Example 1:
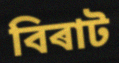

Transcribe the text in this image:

বিৰাট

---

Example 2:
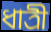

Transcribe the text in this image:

ধাত্ৰী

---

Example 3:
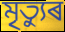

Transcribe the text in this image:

মৃত্যুৰ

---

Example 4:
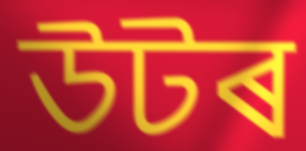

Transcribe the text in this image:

উটৰ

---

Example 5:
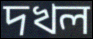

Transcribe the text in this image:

দখল